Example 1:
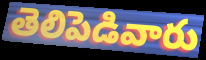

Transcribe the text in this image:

తెలిపెడివారు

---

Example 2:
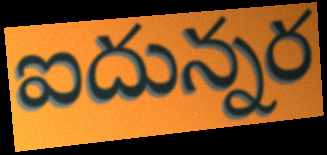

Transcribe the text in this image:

ఐదున్నర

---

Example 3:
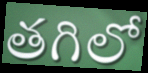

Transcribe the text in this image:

తగిలో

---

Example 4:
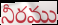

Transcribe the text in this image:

నీరము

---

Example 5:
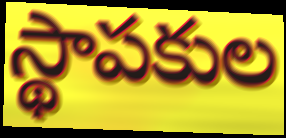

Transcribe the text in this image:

స్థాపకుల